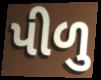
પીળુ